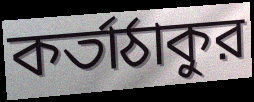
কর্তাঠাকুর